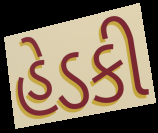
હેડકી